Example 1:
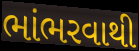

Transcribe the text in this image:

ભાંભરવાથી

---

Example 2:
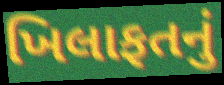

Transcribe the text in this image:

ખિલાફતનું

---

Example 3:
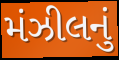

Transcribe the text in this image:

મંઝીલનું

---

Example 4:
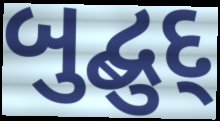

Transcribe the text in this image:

બુદ્બુદ્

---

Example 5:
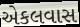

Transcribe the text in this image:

એકલવાસ